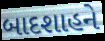
બાદશાહને